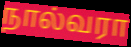
நால்வரா